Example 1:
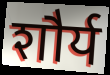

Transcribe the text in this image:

शौर्य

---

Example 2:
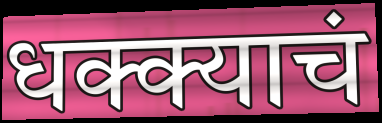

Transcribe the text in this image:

धक्क्याचं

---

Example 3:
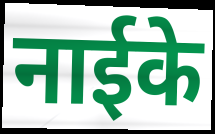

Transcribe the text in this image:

नाईके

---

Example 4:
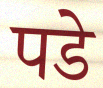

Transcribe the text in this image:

पडे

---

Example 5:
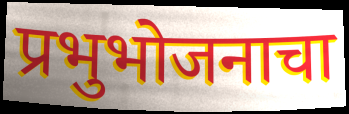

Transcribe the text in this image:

प्रभुभोजनाचा